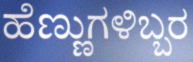
ಹೆಣ್ಣುಗಳಿಬ್ಬರ